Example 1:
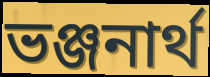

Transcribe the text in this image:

ভঞ্জনার্থ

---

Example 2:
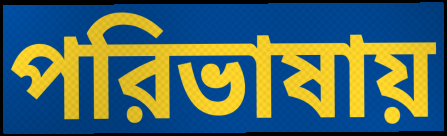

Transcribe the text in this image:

পরিভাষায়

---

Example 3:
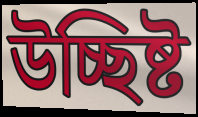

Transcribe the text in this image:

উচ্ছিষ্ট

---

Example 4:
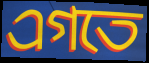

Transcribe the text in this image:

এগতে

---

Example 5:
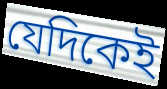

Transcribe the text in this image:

যেদিকেই